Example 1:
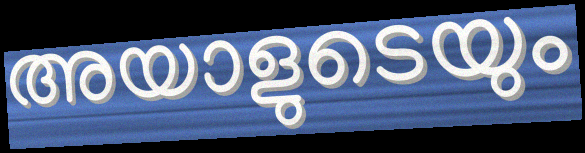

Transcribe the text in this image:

അയാളുടെയും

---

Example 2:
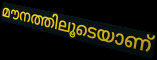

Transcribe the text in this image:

മൗനത്തിലൂടെയാണ്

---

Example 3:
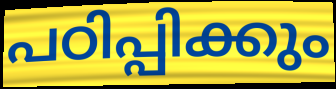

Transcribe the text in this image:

പഠിപ്പിക്കും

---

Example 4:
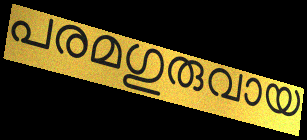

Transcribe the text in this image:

പരമഗുരുവായ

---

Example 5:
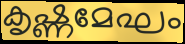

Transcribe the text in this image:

കൃഷ്ണമേഘം